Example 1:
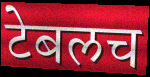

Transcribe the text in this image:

टेबलच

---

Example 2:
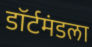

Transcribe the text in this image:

डॉर्टमंडला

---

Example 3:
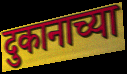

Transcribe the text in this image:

दुकानाच्या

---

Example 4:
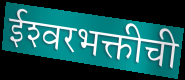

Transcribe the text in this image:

ईश्वरभक्तीची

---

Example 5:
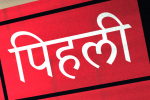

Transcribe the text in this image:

पिहली